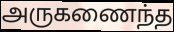
அருகணைந்த